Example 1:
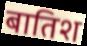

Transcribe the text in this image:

बातिश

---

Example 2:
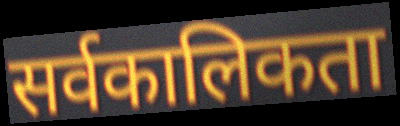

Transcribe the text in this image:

सर्वकालिकता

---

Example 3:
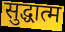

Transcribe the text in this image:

सुद्धात्म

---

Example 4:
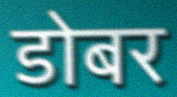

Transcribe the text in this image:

डोबर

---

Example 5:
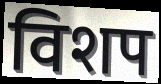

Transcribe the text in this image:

विशप